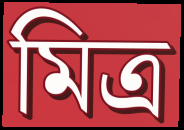
মিত্ৰ